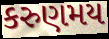
કરુણમય